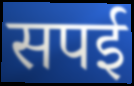
सपई